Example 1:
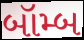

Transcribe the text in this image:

બૉમ્બ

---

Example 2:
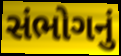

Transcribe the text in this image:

સંભોગનું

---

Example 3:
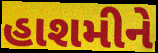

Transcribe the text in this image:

હાશમીને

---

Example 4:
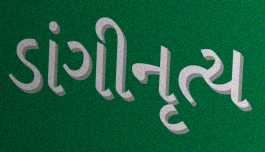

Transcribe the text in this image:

ડાંગીનૃત્ય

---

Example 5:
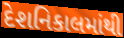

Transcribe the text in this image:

દેશનિકાલમાંથી